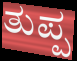
ತುಪ್ಪ